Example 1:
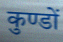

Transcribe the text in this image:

कुण्डों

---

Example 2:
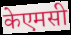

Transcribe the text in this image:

केएमसी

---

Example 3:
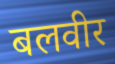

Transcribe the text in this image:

बलवीर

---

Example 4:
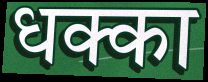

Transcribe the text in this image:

धक्का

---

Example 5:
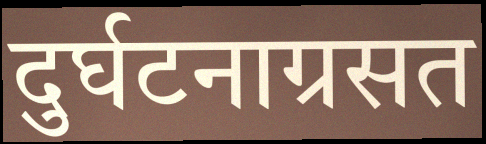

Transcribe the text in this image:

दुर्घटनाग्रसत